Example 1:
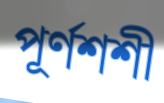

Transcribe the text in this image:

পূর্ণশশী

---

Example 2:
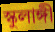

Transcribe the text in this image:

স্কুলাঙ্গী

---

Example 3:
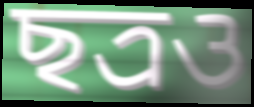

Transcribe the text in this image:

ছত্রও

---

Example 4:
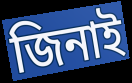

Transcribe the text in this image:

জিনাই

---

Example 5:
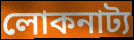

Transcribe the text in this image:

লোকনাট্য